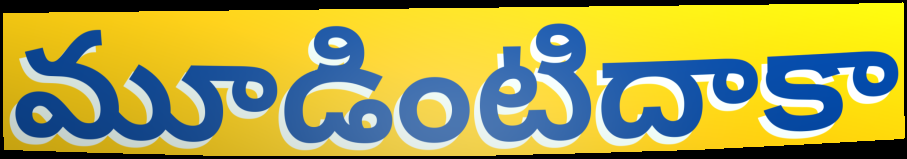
మూడింటిదాకా